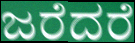
ಜರೆದರೆ